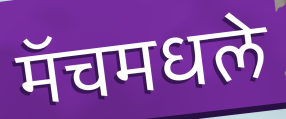
मॅचमधले